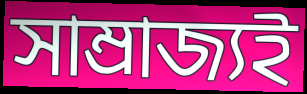
সাম্ৰাজ্যই